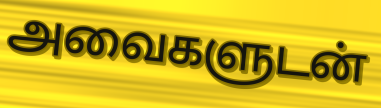
அவைகளுடன்